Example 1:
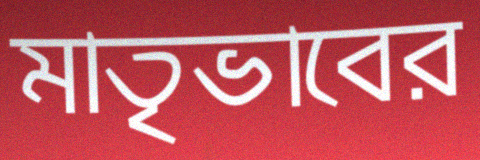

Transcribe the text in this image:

মাতৃভাবের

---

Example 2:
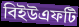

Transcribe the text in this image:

বিইউএফটি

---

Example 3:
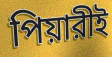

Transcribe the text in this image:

পিয়ারীই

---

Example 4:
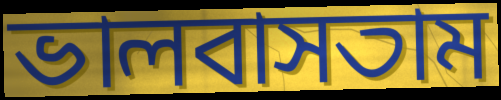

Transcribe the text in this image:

ভালবাসতাম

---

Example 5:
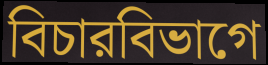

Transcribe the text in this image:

বিচারবিভাগে